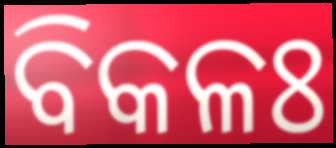
ବିକଳଃ